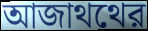
আজাথথের